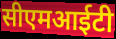
सीएमआईटी